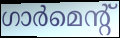
ഗാർമെന്റ്